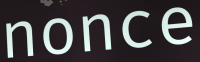
nonce